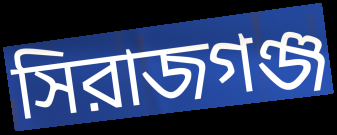
সিরাজগঞ্জ